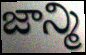
జాన్మి